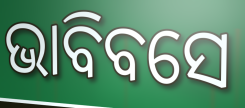
ଭାବିବସେ